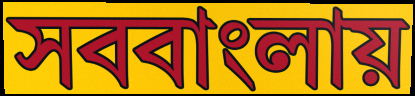
সববাংলায়